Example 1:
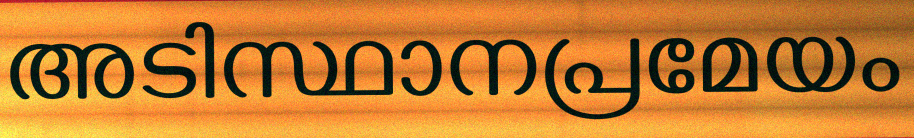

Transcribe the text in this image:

അടിസ്ഥാനപ്രമേയം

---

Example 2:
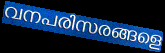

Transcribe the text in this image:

വനപരിസരങ്ങളെ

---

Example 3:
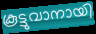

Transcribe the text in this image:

കൂട്ടുവാനായി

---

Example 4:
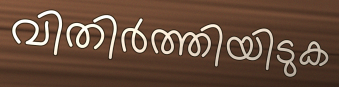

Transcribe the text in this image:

വിതിർത്തിയിടുക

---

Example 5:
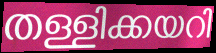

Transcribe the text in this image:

തള്ളിക്കയറി